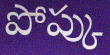
పోప్కు